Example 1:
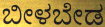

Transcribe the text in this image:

ಬೀಳಬೇಡ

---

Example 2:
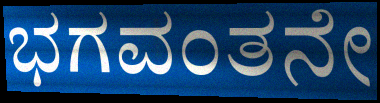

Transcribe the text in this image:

ಭಗವಂತನೇ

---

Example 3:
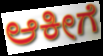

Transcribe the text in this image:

ಆಕೀಗೆ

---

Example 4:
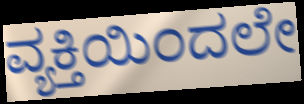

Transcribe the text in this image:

ವ್ಯಕ್ತಿಯಿಂದಲೇ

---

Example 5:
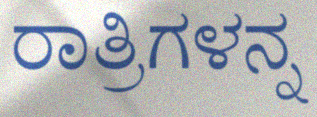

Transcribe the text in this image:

ರಾತ್ರಿಗಳನ್ನ